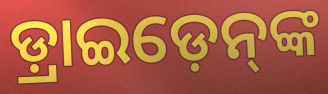
ଡ଼୍ରାଇଡ଼େନ୍‌ଙ୍କ